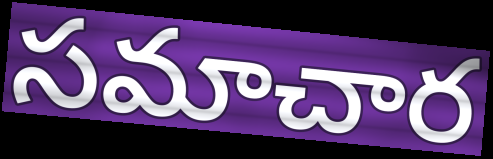
సమాచార